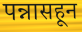
पन्नासहून